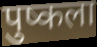
पुष्कला